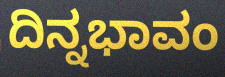
ದಿನ್ನಭಾವಂ